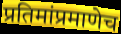
प्रतिमांप्रमाणेच